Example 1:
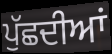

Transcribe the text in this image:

ਪੁੱਛਦੀਆਂ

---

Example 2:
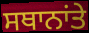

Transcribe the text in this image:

ਸਥਾਨਾਂਤੇ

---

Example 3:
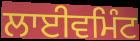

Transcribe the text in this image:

ਲਾਈਵਮਿੰਟ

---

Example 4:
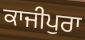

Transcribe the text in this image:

ਕਾਜੀਪੁਰਾ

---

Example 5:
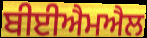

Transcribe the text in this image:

ਬੀਈਐਮਐਲ